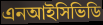
এনআইসিভিডি